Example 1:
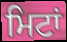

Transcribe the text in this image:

ਮਿਟਾਂ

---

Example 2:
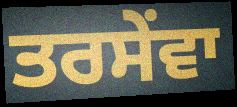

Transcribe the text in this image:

ਤਰਸੇਂਵਾ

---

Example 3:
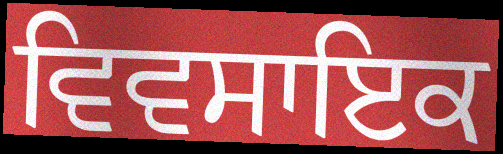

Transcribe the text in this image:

ਵਿਵਸਾਇਕ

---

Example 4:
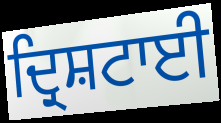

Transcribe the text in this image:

ਦ੍ਰਿਸ਼ਟਾਈ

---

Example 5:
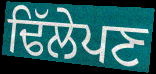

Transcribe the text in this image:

ਢਿੱਲੇਪਣ